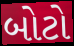
બોટો